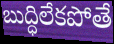
బుద్ధిలేకపోతే